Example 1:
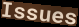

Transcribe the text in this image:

Issues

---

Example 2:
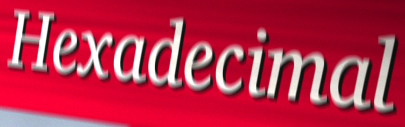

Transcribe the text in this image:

Hexadecimal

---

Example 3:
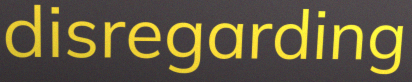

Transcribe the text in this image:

disregarding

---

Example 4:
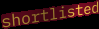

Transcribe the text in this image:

shortlisted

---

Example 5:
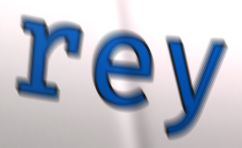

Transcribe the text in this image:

rey